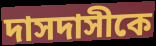
দাসদাসীকে